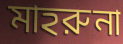
মাহরুনা